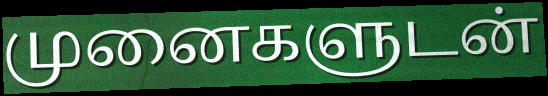
முனைகளுடன்